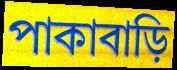
পাকাবাড়ি